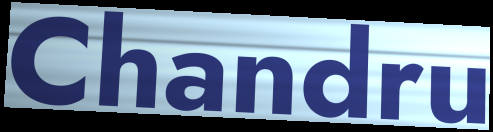
Chandru